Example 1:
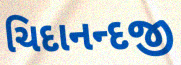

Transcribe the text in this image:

ચિદાનન્દજી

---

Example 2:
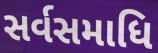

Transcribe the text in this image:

સર્વસમાધિ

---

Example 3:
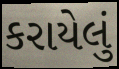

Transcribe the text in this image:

કરાયેલું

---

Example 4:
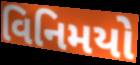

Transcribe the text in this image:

વિનિમયો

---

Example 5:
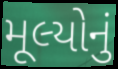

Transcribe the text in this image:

મૂલ્યોનું